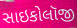
સાઇકોલૉજી